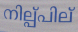
നില്പ്പില്